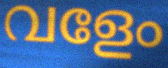
വളേം